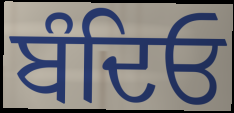
ਬੰਦਿਓ